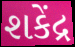
શકેંદ્ર